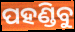
ପହଣ୍ଡିବୁ